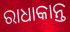
ରାଧାକାନ୍ତ